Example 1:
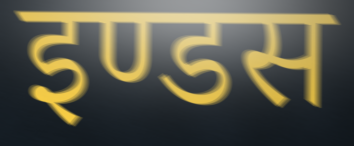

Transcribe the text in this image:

इण्डस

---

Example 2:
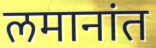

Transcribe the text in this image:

लमानांत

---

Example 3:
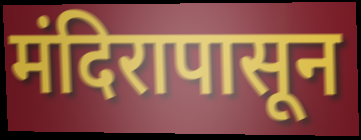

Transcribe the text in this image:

मंदिरापासून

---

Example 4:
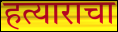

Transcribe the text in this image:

हत्याराचा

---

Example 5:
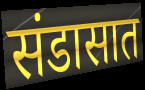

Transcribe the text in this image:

संडासात